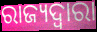
ରାଜ୍ୟଦ୍ୱାରା